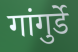
गांगुर्डे